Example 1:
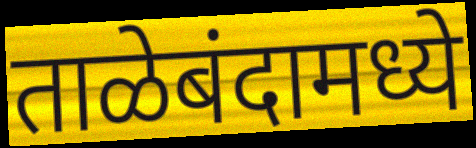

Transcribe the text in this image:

ताळेबंदामध्ये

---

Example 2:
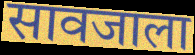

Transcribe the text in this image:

सावजाला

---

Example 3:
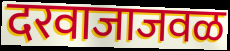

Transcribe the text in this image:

दरवाजाजवळ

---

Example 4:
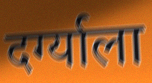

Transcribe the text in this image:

दर्ग्याला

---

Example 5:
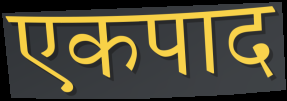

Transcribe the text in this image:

एकपाद